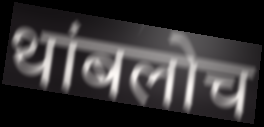
थांबलोच